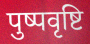
पुष्पवृष्टि